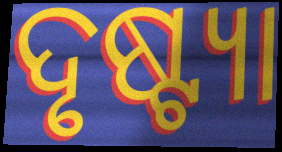
ଦୃଷ୍ଟ୍ୟା